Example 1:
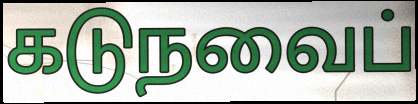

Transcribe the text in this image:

கடுநவைப்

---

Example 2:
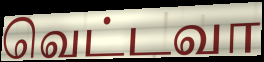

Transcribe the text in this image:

வெட்டவா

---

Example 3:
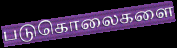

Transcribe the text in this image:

படுகொலைகளை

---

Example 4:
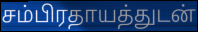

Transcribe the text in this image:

சம்பிரதாயத்துடன்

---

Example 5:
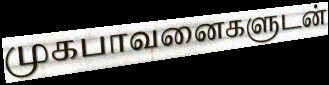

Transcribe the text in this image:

முகபாவனைகளுடன்